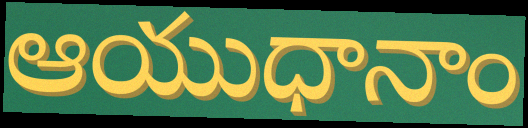
ఆయుధానాం